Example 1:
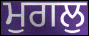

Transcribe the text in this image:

ਮੁਗਲੁ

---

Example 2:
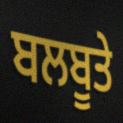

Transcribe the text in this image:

ਬਲਬੂਤੇ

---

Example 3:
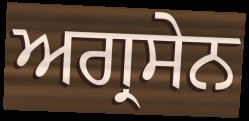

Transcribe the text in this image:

ਅਗ੍ਰਸੇਨ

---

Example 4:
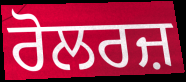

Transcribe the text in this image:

ਰੋਲਰਜ਼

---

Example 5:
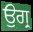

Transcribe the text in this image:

ਉਗ੍ਰ